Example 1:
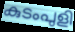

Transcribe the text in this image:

കുടംപുളി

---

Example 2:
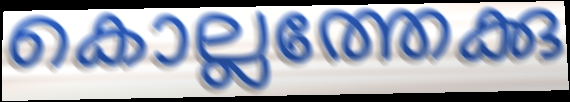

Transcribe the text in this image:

കൊല്ലത്തേക്കു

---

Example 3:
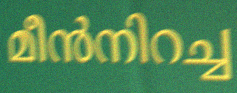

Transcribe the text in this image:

മീൻനിറച്ച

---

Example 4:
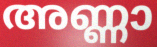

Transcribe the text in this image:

അണ്ണാ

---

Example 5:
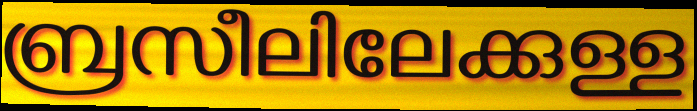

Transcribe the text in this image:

ബ്രസീലിലേക്കുള്ള